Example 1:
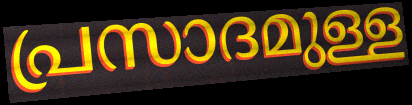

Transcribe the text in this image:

പ്രസാദമുള്ള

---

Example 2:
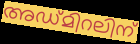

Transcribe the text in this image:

അഡ്മിറലിന്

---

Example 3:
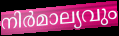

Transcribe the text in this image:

നിർമാല്യവും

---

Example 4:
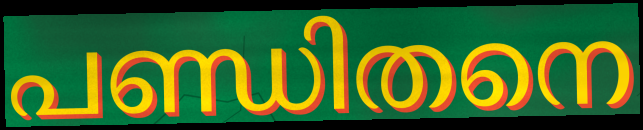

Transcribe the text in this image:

പണ്ഡിതനെ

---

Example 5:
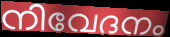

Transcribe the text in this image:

നിവേദനം